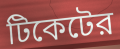
টিকেটের